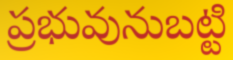
ప్రభువునుబట్టి